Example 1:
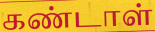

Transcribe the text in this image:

கண்டாள்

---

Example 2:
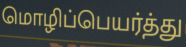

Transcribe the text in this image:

மொழிப்பெயர்த்து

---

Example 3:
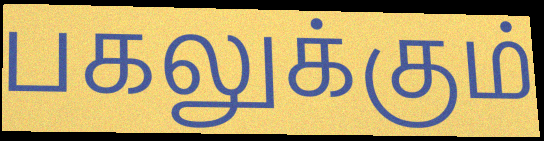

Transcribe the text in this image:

பகலுக்கும்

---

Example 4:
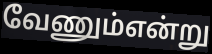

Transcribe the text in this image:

வேணும்என்று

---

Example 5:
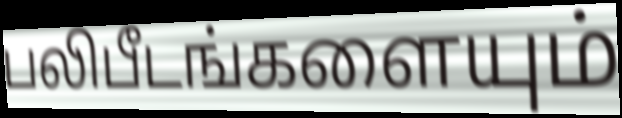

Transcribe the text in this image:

பலிபீடங்களையும்